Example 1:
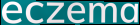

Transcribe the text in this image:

eczema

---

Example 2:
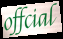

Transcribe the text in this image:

offcial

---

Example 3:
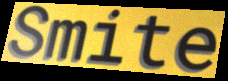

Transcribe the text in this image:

Smite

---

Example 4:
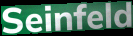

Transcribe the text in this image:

Seinfeld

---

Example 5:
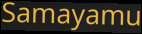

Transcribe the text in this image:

Samayamu